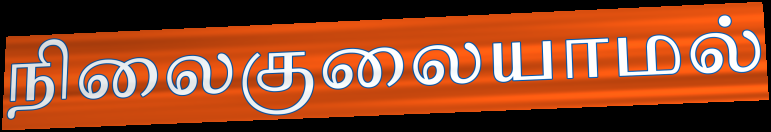
நிலைகுலையாமல்